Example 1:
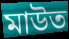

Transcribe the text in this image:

মাউত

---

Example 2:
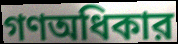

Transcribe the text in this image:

গণঅধিকার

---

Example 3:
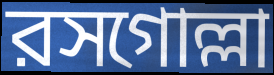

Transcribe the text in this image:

রসগোল্লা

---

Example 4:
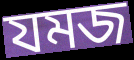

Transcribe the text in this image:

যমজ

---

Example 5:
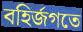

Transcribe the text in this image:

বহির্জগতে